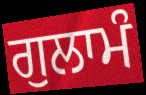
ਗੁਲਾਮੰ